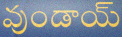
వుండాయ్